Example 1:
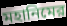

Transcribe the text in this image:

মহানিমের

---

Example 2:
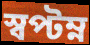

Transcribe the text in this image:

স্বপ্টম্ন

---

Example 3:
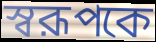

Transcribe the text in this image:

স্বরূপকে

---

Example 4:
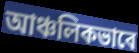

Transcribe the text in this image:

আঞ্চলিকভাবে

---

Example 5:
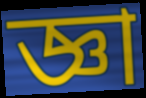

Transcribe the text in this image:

জ্ঞা